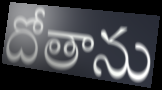
దోతాను